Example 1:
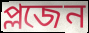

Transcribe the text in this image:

প্লজেন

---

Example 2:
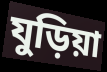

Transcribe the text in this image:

যুড়িয়া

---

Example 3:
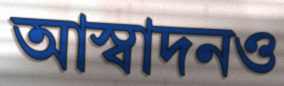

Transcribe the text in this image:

আস্বাদনও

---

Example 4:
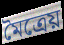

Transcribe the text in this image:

মৈত্রেয়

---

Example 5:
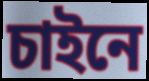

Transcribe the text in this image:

চাইনে